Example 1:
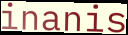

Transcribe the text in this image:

inanis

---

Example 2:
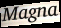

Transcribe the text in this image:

Magna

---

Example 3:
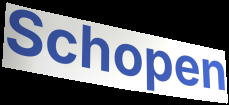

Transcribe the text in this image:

Schopen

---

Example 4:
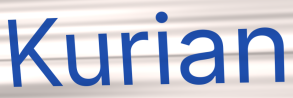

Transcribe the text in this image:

Kurian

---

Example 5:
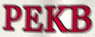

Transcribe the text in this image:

PEKB